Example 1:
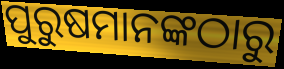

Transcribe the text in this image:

ପୁରୁଷମାନଙ୍କଠାରୁ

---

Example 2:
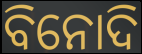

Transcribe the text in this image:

ବିନୋଦି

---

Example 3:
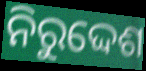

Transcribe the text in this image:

ନିରୁଦ୍ଦେଶ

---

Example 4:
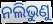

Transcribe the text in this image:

ନଲିଭୁଣୁ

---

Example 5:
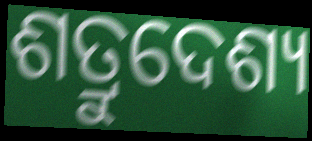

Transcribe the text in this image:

ଶତ୍ରୁଦେଶ୍ୟ